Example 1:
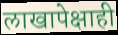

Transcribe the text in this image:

लाखापेक्षाही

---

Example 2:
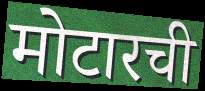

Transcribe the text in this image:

मोटारची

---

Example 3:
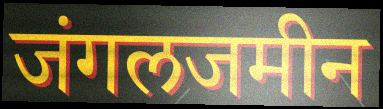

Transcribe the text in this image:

जंगलजमीन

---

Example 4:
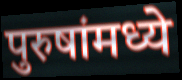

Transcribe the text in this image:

पुरुषांमध्ये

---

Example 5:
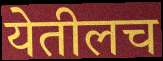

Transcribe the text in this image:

येतीलच